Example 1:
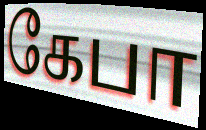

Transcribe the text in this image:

கேபா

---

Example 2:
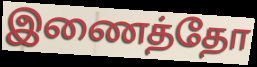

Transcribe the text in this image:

இணைத்தோ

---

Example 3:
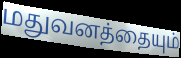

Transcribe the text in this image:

மதுவனத்தையும்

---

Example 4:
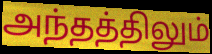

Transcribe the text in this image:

அந்தத்திலும்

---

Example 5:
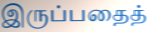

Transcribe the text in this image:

இருப்பதைத்